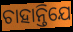
ଚାହାନ୍ତିଯେ